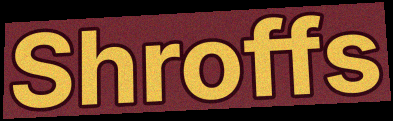
Shroffs